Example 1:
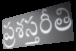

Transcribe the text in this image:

ప్రశస్తరీతి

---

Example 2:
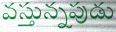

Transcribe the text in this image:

వస్తున్నపుడు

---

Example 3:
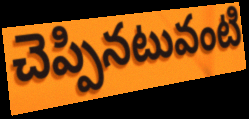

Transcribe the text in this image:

చెప్పినటువంటి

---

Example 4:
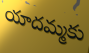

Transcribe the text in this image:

యాదమ్మకు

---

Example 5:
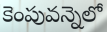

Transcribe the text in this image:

కెంపువన్నెలో